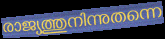
രാജ്യത്തുനിന്നുതന്നെ